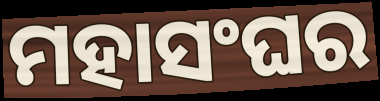
ମହାସଂଘର